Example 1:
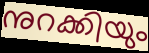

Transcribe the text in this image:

നുറക്കിയും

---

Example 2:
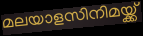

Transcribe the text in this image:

മലയാളസിനിമയ്ക്ക്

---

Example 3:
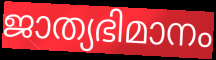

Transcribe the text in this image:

ജാത്യഭിമാനം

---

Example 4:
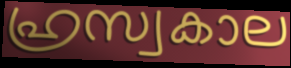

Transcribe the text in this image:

ഹ്രസ്വകാല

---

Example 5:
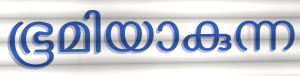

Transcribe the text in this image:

ഭൂമിയാകുന്ന